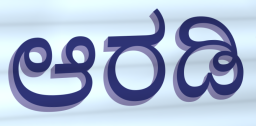
ಆರಡಿ